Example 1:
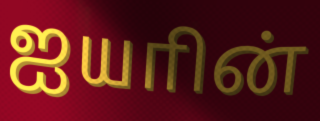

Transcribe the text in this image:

ஐயரின்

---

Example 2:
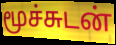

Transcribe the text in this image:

மூச்சுடன்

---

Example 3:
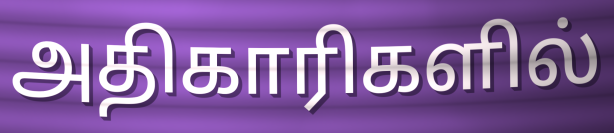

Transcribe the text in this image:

அதிகாரிகளில்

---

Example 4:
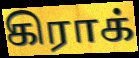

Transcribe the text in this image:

கிராக்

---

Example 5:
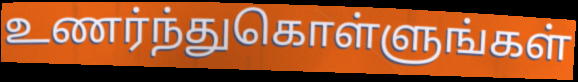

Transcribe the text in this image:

உணர்ந்துகொள்ளுங்கள்